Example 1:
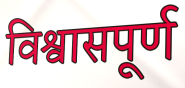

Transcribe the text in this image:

विश्वासपूर्ण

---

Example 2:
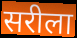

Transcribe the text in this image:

सरीला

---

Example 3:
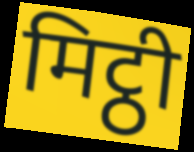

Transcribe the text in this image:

मिट्ठी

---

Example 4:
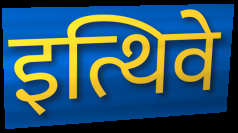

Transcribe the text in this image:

इत्थिवे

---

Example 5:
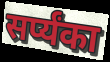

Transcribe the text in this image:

सर्प्यंका